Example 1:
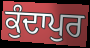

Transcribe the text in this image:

ਕੁੰਦਾਪੁਰ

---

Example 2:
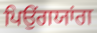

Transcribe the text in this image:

ਪਿਉਂਗਯਾਂਗ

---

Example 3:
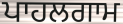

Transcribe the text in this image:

ਪਾਹਲਗਾਮ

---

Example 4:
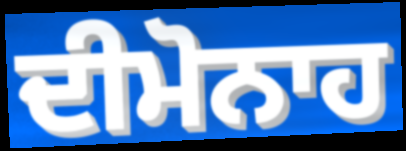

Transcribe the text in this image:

ਦੀਮੋਨਾਹ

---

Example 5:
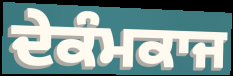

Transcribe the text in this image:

ਦੇਕੰਮਕਾਜ